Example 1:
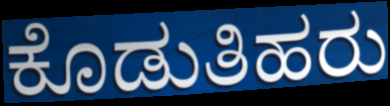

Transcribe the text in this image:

ಕೊಡುತಿಹರು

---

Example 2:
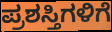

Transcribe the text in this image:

ಪ್ರಶಸ್ತಿಗಳಿಗೆ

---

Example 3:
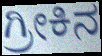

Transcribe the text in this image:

ಗ್ರೀಕಿನ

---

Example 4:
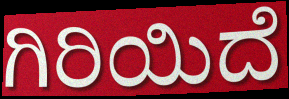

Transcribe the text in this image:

ಗಿರಿಯಿದೆ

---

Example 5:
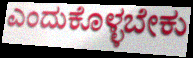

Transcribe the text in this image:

ಎಂದುಕೊಳ್ಳಬೇಕು